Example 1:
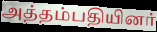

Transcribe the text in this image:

அத்தம்பதியினர்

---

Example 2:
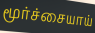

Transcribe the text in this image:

மூர்ச்சையாய்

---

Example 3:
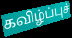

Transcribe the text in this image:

கவிழ்ப்புச்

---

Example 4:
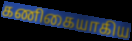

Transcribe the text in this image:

கணிகையாகிய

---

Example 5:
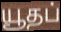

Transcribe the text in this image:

யூதப்